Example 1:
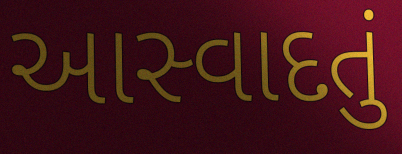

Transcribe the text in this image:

આસ્વાદતું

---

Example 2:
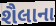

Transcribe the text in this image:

શૈલાના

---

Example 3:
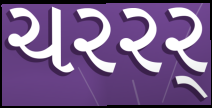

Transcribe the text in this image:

ચરરર્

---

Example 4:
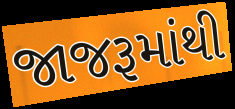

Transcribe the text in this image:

જાજરૂમાંથી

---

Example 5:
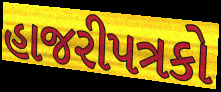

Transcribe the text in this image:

હાજરીપત્રકો